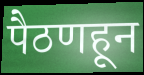
पैठणहून